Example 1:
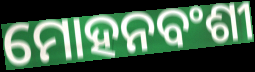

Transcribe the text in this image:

ମୋହନବଂଶୀ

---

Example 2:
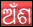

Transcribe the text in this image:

ଅଁଶ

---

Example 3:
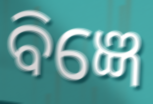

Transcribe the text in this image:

ବିଜ୍ଞେ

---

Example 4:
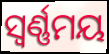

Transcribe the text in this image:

ସ୍ୱର୍ଣ୍ଣମୟ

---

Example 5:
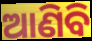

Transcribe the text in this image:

ଆଣିବି